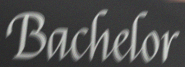
Bachelor